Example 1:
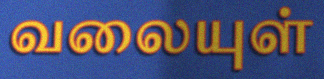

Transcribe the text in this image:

வலையுள்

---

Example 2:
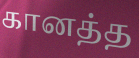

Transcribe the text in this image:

கானத்த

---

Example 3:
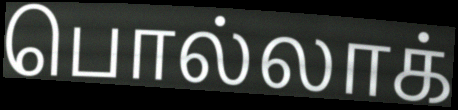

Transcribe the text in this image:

பொல்லாக்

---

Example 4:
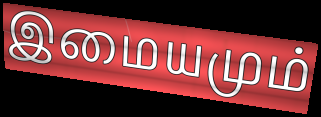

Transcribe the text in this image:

இமையமும்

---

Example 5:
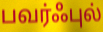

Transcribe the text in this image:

பவர்ஃபுல்